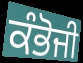
ਕੰਭੋਜੀ